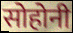
सोहोनी